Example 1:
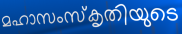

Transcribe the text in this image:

മഹാസംസ്കൃതിയുടെ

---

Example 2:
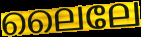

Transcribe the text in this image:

ലൈലേ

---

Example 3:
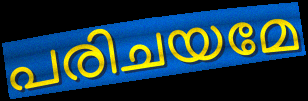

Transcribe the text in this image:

പരിചയമേ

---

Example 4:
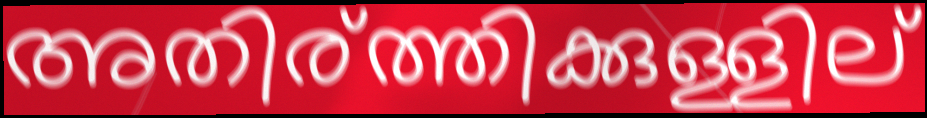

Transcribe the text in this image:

അതിര്ത്തിക്കുള്ളില്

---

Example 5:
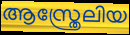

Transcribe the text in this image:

ആസ്ത്രേലിയ